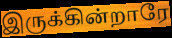
இருக்கின்றாரே